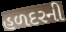
હળદરની